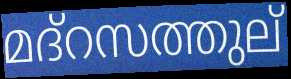
മദ്റസത്തുല്